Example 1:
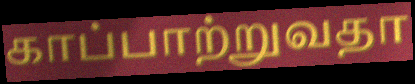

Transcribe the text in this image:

காப்பாற்றுவதா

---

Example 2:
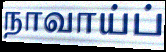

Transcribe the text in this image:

நாவாய்ப்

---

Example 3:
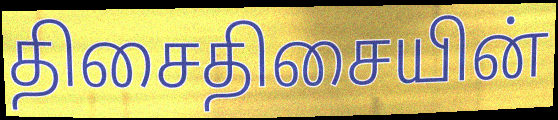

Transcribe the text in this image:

திசைதிசையின்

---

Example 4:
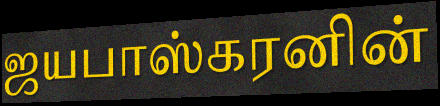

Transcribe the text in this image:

ஜயபாஸ்கரனின்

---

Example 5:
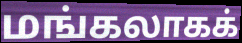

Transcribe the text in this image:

மங்கலாகக்